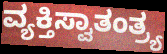
ವ್ಯಕ್ತಿಸ್ವಾತಂತ್ರ್ಯ